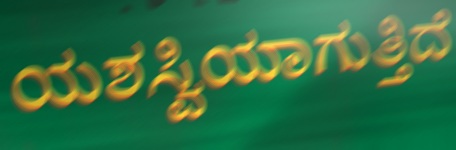
ಯಶಸ್ವಿಯಾಗುತ್ತಿದೆ